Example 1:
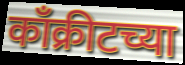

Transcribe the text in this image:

काँक्रीटच्या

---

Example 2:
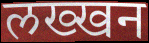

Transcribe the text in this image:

लख्खन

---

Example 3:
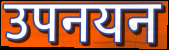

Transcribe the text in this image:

उपनयन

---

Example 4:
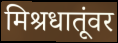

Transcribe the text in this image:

मिश्रधातूंवर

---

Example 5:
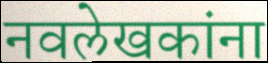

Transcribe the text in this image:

नवलेखकांना